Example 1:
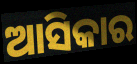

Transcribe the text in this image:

ଆସିକାର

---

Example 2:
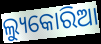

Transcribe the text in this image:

ଲ୍ୟୁକୋରିଆ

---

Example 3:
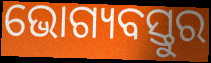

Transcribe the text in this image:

ଭୋଗ୍ୟବସ୍ତୁର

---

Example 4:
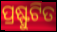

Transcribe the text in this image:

ପ୍ରଷ୍ଫୁଟିତ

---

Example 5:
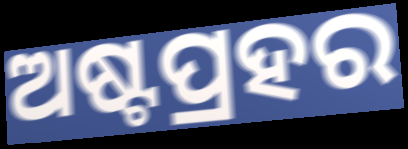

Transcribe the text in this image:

ଅଷ୍ଟପ୍ରହର